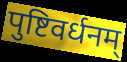
पुष्टिवर्धनम्